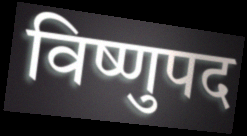
विष्णुपद